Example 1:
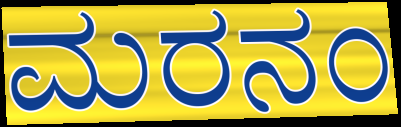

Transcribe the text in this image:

ಮರನಂ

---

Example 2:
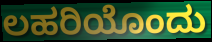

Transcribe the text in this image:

ಲಹರಿಯೊಂದು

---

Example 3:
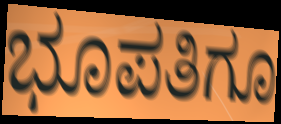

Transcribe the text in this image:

ಭೂಪತಿಗೂ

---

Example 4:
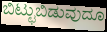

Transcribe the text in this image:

ಬಿಟ್ಟುಬಿಡುವುದೂ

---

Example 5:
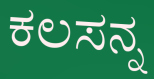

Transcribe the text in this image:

ಕಲಸನ್ನ